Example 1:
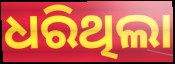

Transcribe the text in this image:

ଧରିଥିଲା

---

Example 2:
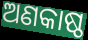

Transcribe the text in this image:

ଅଣକାଷ୍ଠ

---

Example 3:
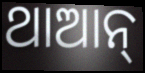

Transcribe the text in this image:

ଥାଆନ୍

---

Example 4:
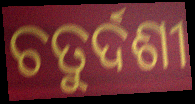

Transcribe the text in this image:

ଚତୁର୍ଦଶୀ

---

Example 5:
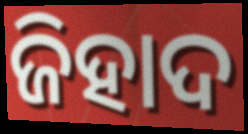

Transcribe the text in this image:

ଜିହାଦ